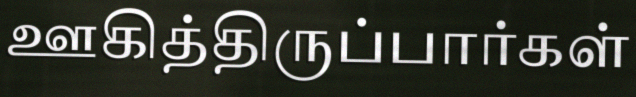
ஊகித்திருப்பார்கள்